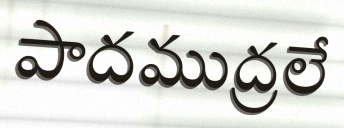
పాదముద్రలే